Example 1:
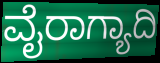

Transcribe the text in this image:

ವೈರಾಗ್ಯಾದಿ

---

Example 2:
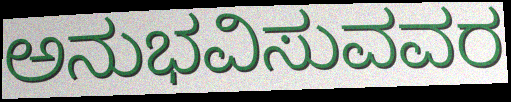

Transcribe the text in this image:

ಅನುಭವಿಸುವವರ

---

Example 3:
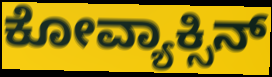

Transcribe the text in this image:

ಕೋವ್ಯಾಕ್ಸಿನ್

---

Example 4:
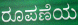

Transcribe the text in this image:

ರೂಪಣೆಯ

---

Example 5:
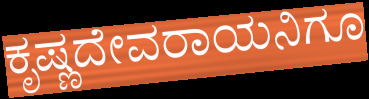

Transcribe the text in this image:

ಕೃಷ್ಣದೇವರಾಯನಿಗೂ